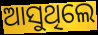
ଆସୁଥିଲେ